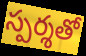
స్పర్శతో